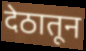
देठातून